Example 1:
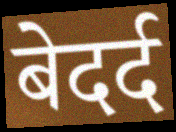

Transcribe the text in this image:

बेदर्द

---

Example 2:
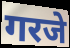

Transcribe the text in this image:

गरजे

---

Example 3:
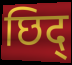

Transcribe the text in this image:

छिद्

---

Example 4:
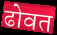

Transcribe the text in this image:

ढोवत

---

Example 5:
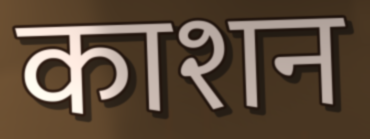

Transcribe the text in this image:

काशन